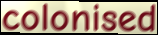
colonised